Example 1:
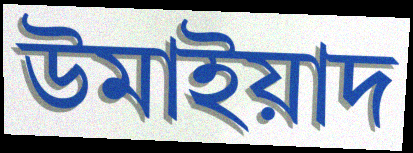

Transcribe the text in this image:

উমাইয়াদ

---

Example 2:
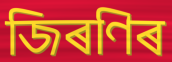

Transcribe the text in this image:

জিৰণিৰ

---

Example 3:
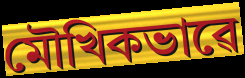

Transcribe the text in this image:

মৌখিকভাৱে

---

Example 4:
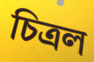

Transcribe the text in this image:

চিত্ৰল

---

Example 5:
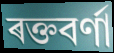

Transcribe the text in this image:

ৰক্তবৰ্ণা